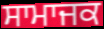
ਸਾਮਾਜਕ